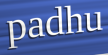
padhu